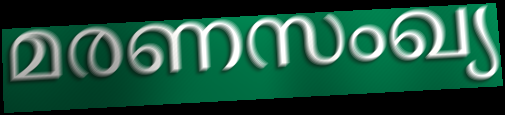
മരണസംഖ്യ